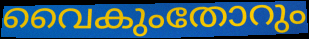
വൈകുംതോറും